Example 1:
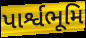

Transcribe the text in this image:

પાર્શ્વભૂમિ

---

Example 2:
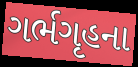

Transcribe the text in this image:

ગર્ભગૃહના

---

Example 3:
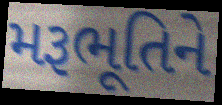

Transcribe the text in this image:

મરૂભૂતિને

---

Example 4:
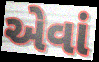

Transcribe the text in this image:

એવાં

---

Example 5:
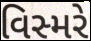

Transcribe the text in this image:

વિસ્મરે